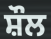
ਸ਼ੌਲ